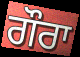
ਗੌਰਾ